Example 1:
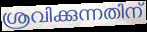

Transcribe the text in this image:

ശ്രവിക്കുന്നതിന്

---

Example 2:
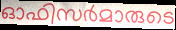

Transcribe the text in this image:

ഓഫിസർമാരുടെ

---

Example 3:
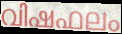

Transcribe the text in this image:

വിഷഫലം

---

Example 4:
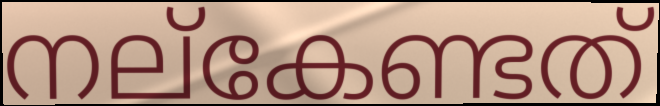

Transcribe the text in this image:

നല്കേണ്ടത്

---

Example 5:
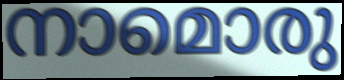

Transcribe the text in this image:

നാമൊരു